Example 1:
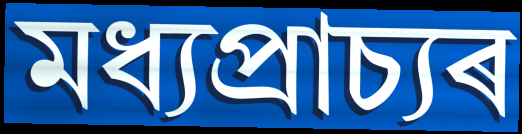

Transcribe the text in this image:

মধ্যপ্ৰাচ্যৰ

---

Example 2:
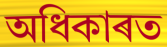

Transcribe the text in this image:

অধিকাৰত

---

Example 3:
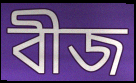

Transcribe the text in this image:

বীজ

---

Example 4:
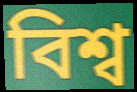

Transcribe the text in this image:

বিশ্ব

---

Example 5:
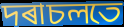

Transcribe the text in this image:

দৰাচলতে